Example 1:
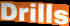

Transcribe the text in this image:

Drills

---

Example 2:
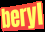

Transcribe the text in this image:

beryl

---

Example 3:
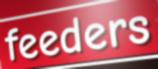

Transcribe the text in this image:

feeders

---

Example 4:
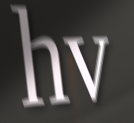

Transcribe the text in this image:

hv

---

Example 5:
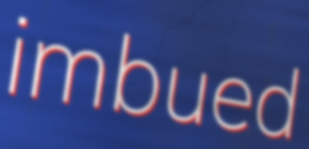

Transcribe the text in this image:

imbued